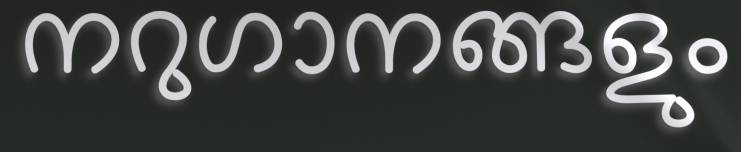
നറുഗാനങ്ങളും